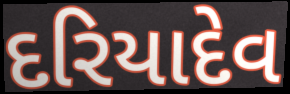
દરિયાદેવ